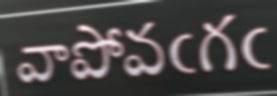
వాపోవఁగఁ